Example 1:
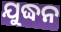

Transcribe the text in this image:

ଯୁଦ୍ଧନ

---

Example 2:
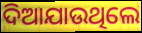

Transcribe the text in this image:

ଦିଆଯାଉଥିଲେ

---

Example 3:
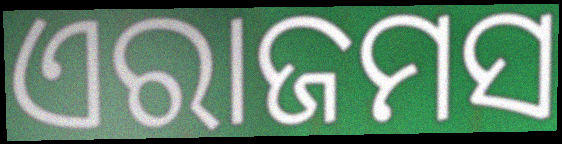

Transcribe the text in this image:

ଏରାଜମସ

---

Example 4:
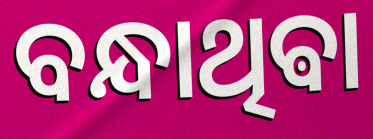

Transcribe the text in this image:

ବନ୍ଧାଥିଵା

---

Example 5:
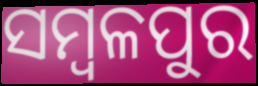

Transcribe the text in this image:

ସମ୍ବଳପୁର